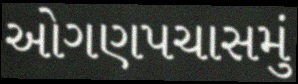
ઓગણપચાસમું